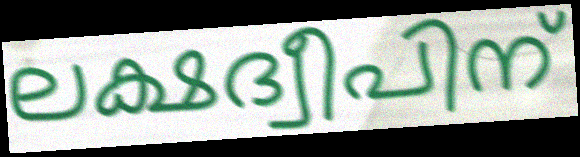
ലക്ഷദ്വീപിന്